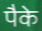
पैके